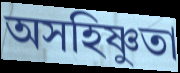
অসহিষ্ণুতা